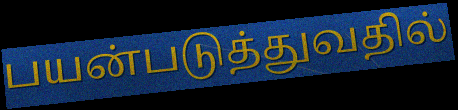
பயன்படுத்துவதில்